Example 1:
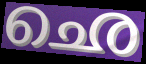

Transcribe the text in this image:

ഛെ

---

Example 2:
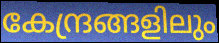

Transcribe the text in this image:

കേന്ദ്രങ്ങളിലും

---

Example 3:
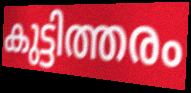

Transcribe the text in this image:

കുട്ടിത്തരം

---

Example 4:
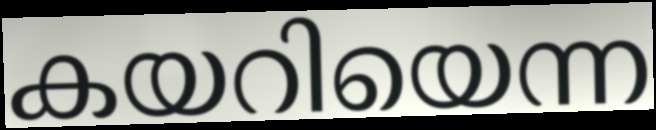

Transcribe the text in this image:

കയറിയെന്ന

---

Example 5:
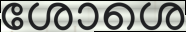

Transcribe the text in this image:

ശോശെ